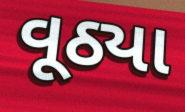
વૂઠ્યા